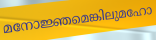
മനോജ്ഞമെങ്കിലുമഹോ